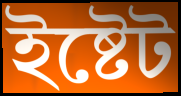
ইষ্টেট